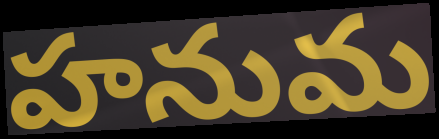
హనుమ